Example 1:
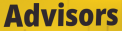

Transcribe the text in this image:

Advisors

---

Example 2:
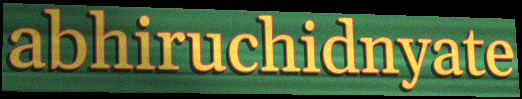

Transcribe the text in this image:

abhiruchidnyate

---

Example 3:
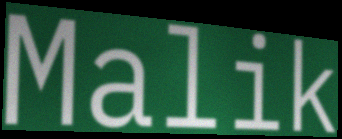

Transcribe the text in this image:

Malik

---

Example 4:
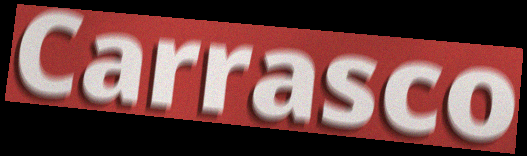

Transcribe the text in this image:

Carrasco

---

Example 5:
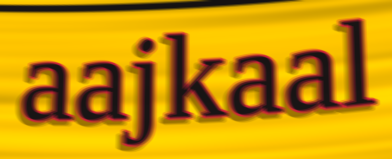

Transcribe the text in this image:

aajkaal